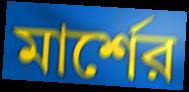
মার্শের